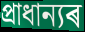
প্ৰাধান্যৰ